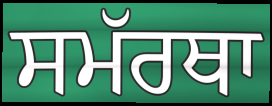
ਸਮੱਰਥਾ